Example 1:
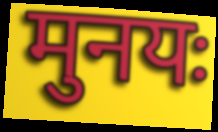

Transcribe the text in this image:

मुनयः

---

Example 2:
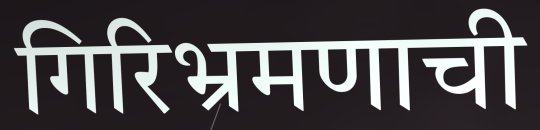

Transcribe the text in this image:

गिरिभ्रमणाची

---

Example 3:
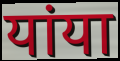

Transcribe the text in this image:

यांया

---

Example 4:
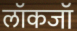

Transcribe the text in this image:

लॉकजॉ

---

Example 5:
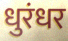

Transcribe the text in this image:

धुरंधर